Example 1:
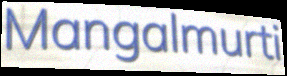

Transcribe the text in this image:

Mangalmurti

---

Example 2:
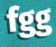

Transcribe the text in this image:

fgg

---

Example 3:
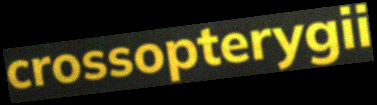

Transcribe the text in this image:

crossopterygii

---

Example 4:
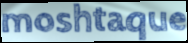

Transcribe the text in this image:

moshtaque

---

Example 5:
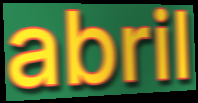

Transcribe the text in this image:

abril